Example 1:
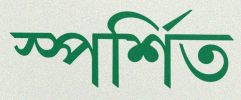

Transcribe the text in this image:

স্পর্শিত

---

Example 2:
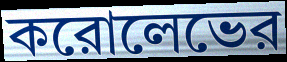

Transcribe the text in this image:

করোলেভের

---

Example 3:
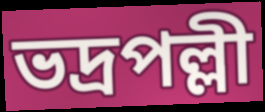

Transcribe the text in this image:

ভদ্রপল্লী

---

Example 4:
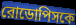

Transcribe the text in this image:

রোডোপিসকে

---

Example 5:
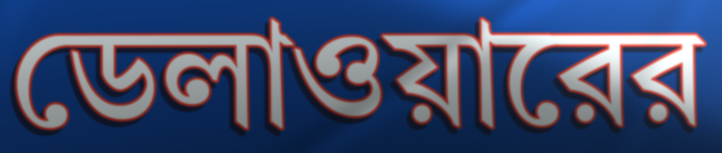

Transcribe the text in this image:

ডেলাওয়ারের